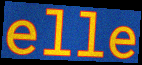
elle